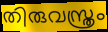
തിരുവസ്ത്രം